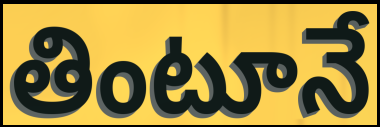
తింటూనే